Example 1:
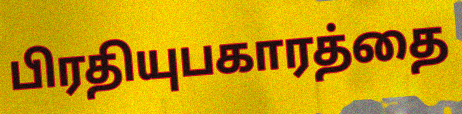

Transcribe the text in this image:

பிரதியுபகாரத்தை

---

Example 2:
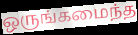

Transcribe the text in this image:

ஒருங்கமைந்த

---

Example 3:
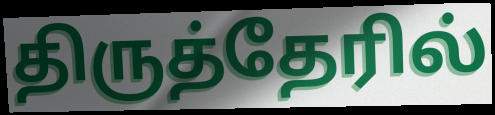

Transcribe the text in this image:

திருத்தேரில்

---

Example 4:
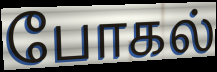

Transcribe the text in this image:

போகல்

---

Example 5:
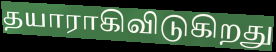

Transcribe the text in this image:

தயாராகிவிடுகிறது